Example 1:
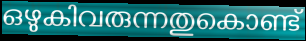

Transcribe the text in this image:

ഒഴുകിവരുന്നതുകൊണ്ട്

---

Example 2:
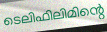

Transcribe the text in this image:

ടെലിഫിലിമിന്റെ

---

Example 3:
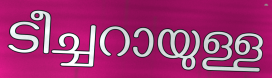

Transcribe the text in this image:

ടീച്ചറായുള്ള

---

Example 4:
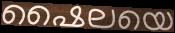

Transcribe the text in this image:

ഷൈലയെ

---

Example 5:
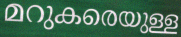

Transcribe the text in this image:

മറുകരെയുള്ള